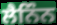
ਲੈਨਿੰਨ